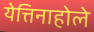
येत्तिनाहोले